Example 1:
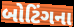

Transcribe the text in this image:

બોટિંગના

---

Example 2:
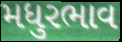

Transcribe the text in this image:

મધુરભાવ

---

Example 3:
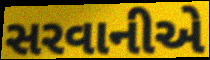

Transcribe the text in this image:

સરવાનીએ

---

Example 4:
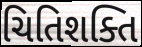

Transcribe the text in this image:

ચિતિશક્તિ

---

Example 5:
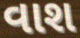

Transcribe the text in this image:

વાશ